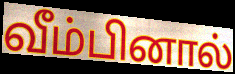
வீம்பினால்